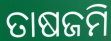
ତାଷଜମି